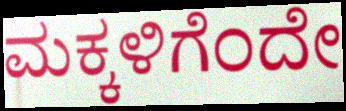
ಮಕ್ಕಳಿಗೆಂದೇ